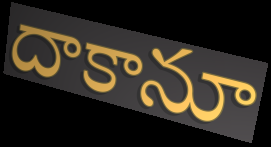
దాకానూ